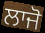
ਲਾਜੋ